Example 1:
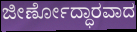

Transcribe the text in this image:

ಜೀರ್ಣೋದ್ಧಾರವಾದ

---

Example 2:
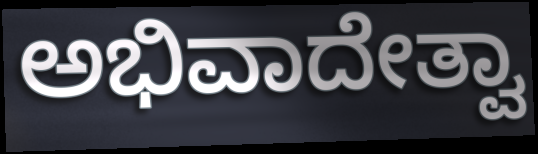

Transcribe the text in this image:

ಅಭಿವಾದೇತ್ವಾ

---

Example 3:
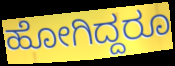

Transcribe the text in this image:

ಹೋಗಿದ್ದರೂ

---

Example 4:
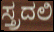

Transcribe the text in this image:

ಸ್ತ್ರದಲಿ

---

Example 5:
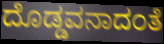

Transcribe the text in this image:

ದೊಡ್ಡವನಾದಂತೆ